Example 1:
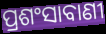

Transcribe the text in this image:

ପ୍ରଶଂସାବାଣୀ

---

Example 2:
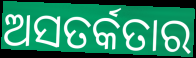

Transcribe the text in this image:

ଅସତର୍କତାର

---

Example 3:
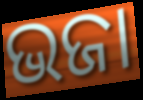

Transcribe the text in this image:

ଭଜା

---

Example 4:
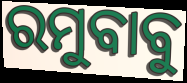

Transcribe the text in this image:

ରମୁବାବୁ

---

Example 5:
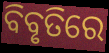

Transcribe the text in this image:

ବିବୃତିରେ